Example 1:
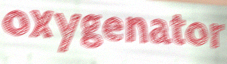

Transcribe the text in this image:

oxygenator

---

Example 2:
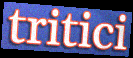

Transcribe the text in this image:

tritici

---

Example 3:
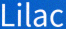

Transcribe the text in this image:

Lilac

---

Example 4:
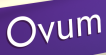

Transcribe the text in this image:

Ovum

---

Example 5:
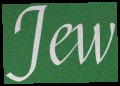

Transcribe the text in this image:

Jew